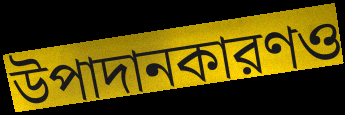
উপাদানকারণও